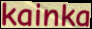
kainka